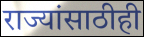
राज्यांसाठीही